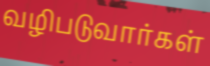
வழிபடுவார்கள்